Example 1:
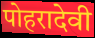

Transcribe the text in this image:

पोहरादेवी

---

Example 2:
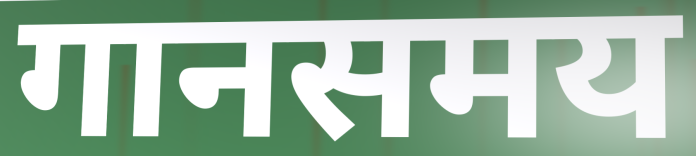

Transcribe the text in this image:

गानसमय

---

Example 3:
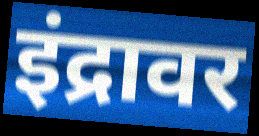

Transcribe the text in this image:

इंद्रावर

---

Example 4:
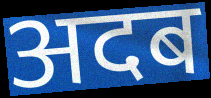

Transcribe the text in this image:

अदब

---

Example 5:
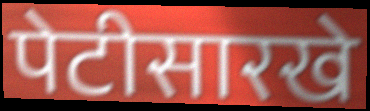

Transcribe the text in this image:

पेटीसारखे